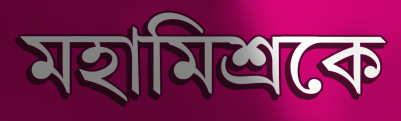
মহামিশ্রকে